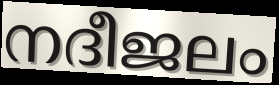
നദീജലം